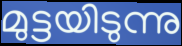
മുട്ടയിടുന്നു